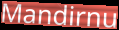
Mandirnu